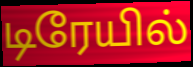
டிரேயில்